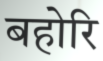
बहोरि